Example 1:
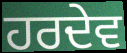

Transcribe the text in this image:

ਹਰਦੇਵ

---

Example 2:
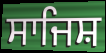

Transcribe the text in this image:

ਸਾਜਿਸ਼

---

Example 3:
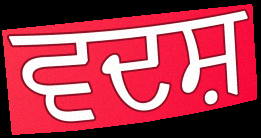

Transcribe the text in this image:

ਵਦਸ਼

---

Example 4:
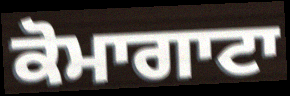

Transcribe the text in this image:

ਕੋਮਾਗਾਟਾ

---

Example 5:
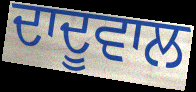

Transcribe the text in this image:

ਦਾਦੂਵਾਲ